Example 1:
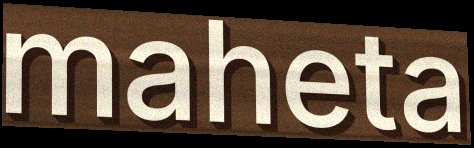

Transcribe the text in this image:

maheta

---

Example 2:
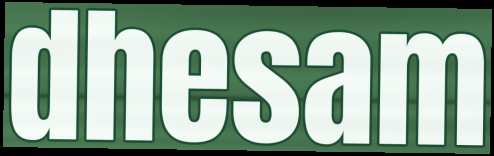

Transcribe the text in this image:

dhesam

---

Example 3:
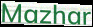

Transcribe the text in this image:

Mazhar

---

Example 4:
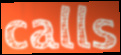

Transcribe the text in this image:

calls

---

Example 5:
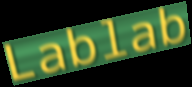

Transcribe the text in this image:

Lablab